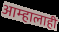
आम्हालाही